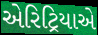
એરિટ્રિયાએ